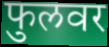
फुलवर